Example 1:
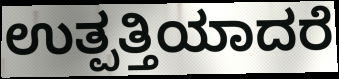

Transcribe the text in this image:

ಉತ್ಪತ್ತಿಯಾದರೆ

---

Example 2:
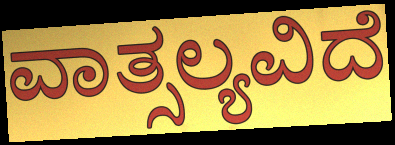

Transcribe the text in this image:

ವಾತ್ಸಲ್ಯವಿದೆ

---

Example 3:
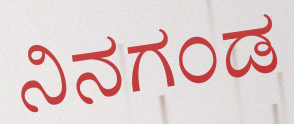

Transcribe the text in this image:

ನಿನಗಂಡ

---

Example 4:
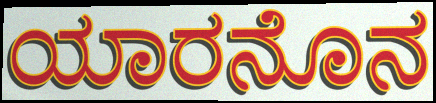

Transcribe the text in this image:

ಯಾರನೊನ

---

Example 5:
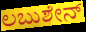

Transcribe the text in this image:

ಲಬುಶೇನ್